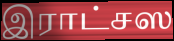
இராட்சஸ